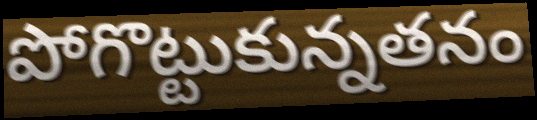
పోగొట్టుకున్నతనం